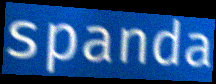
spanda